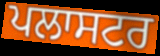
ਪਲਾਸਟਰ